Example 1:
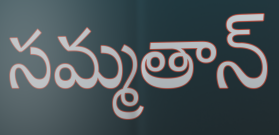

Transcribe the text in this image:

సమ్మతాన్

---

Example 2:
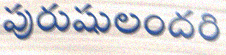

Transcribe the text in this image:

పురుషులందరి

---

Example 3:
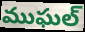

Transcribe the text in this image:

ముఘల్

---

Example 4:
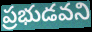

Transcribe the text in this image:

ప్రభుడవని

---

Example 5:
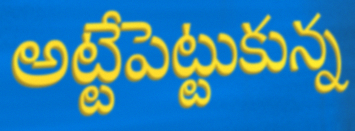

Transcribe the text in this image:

అట్టేపెట్టుకున్న